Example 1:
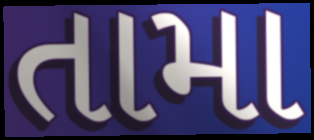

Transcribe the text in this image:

તામા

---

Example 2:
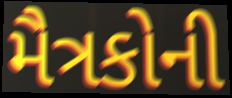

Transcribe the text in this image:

મૈત્રકોની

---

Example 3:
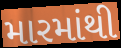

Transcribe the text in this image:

મારમાંથી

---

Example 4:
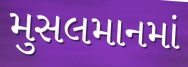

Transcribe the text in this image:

મુસલમાનમાં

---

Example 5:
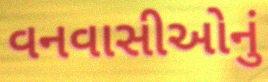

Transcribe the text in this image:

વનવાસીઓનું